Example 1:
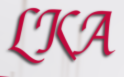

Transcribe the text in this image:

LKA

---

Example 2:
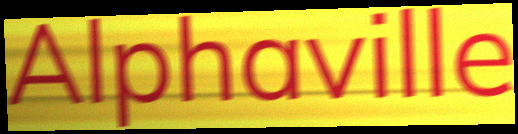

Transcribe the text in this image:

Alphaville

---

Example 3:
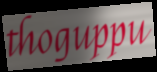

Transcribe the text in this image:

thoguppu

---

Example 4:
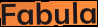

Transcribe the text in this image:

Fabula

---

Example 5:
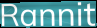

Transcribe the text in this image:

Rannit